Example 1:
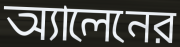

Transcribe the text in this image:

অ্যালেনের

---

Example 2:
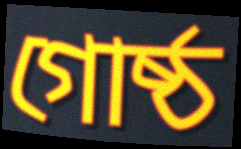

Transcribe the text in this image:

গোষ্ঠ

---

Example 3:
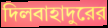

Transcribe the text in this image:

দিলবাহাদুরের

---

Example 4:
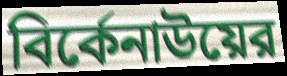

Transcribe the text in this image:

বির্কেনাউয়ের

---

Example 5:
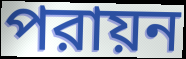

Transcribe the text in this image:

পরায়ন